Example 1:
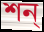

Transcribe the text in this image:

শন্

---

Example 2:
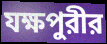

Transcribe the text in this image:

যক্ষপুরীর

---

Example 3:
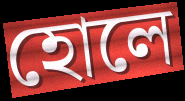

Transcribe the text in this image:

হোলে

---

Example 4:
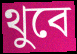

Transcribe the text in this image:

থুবে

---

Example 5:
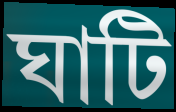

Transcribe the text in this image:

ঘাটি